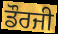
ਡੌਰਜੀ